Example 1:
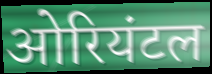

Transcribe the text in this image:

ओरियंटल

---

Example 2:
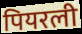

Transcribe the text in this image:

पियरली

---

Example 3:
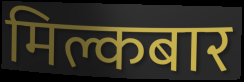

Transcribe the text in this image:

मिल्कबार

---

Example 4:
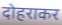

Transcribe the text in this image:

दोहराकर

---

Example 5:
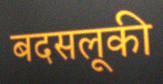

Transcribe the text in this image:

बदसलूकी